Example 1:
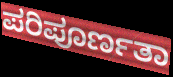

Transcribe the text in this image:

ಪರಿಪೂರ್ಣತಾ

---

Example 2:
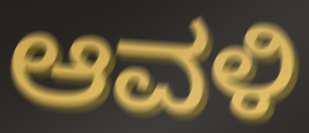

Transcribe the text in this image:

ಆವಳಿ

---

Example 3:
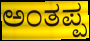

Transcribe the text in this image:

ಅಂತಪ್ಪ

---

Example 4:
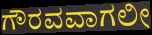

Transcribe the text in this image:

ಗೌರವವಾಗಲೀ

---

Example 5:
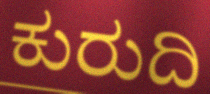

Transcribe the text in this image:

ಕುರುದಿ